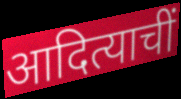
आदित्याचीं